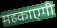
महकाएगी